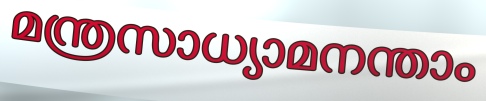
മന്ത്രസാധ്യാമനന്താം